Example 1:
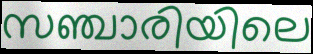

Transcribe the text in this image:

സഞ്ചാരിയിലെ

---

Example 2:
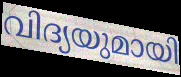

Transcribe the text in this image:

വിദ്യയുമായി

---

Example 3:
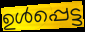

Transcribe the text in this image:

ഉൾപ്പെട്ട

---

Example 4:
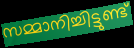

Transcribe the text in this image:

സമ്മാനിച്ചിട്ടുണ്ട്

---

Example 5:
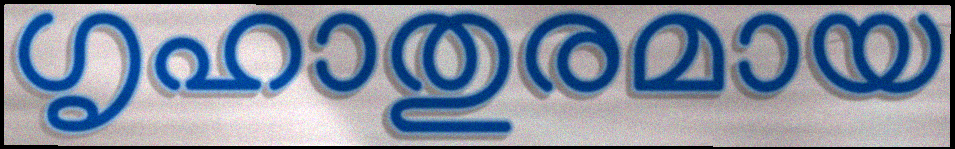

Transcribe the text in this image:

ഗൃഹാതുരമായ